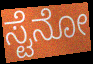
ಸ್ಟೆನೋ